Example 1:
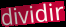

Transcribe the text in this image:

dividir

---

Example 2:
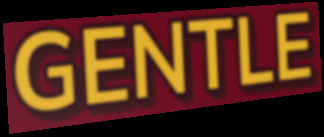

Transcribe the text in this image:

GENTLE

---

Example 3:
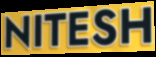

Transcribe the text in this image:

NITESH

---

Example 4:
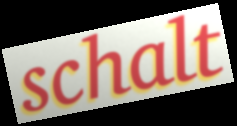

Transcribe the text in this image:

schalt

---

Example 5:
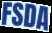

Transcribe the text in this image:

FSDA